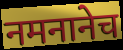
नमनानेच